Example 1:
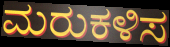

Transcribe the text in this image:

ಮರುಕಳಿಸ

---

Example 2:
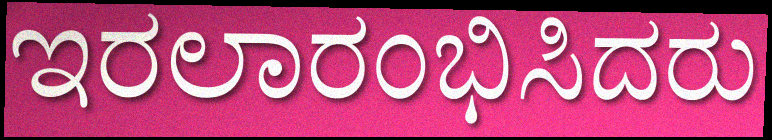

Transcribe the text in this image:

ಇರಲಾರಂಭಿಸಿದರು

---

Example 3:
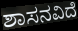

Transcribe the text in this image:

ಶಾಸನವಿದೆ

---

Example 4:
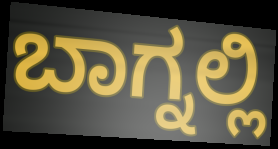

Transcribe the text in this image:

ಬಾಗ್ನಲ್ಲಿ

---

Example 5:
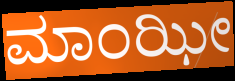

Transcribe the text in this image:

ಮಾಂಝೀ